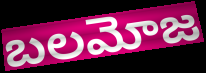
బలమోజ